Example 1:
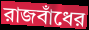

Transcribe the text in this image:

রাজবাঁধের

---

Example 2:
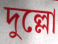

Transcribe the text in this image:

দুল্লো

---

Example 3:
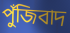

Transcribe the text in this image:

পুঁজিবাদ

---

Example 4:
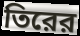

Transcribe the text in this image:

তিরের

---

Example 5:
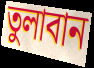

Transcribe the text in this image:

তুলাবান